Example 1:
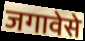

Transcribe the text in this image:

जगावेसे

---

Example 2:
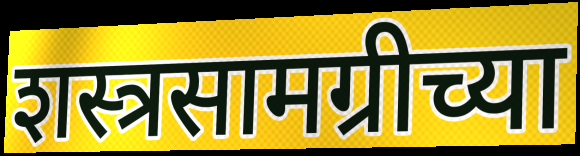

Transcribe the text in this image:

शस्त्रसामग्रीच्या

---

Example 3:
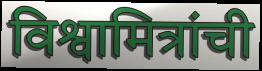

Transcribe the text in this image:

विश्वामित्रांची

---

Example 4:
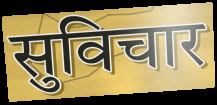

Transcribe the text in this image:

सुविचार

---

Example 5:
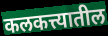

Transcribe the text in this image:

कलकत्त्यातील